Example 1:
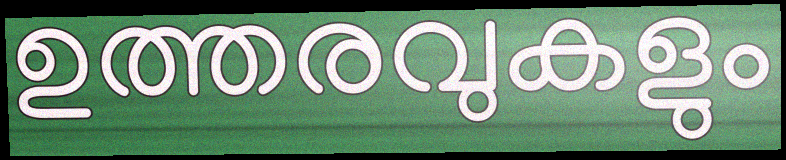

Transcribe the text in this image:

ഉത്തരവുകളും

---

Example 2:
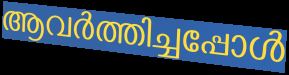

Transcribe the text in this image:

ആവർത്തിച്ചപ്പോൾ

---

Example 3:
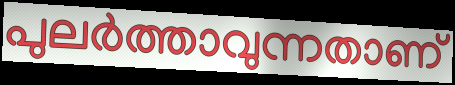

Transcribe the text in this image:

പുലർത്താവുന്നതാണ്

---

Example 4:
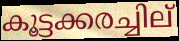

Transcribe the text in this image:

കൂട്ടക്കരച്ചില്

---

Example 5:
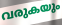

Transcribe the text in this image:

വരുകയും